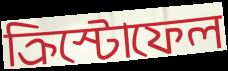
ক্রিস্টোফেল